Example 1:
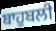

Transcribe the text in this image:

ਬਾਹੁਬਲੀ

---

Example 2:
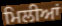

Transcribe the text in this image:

ਮਿਲੀਆਂ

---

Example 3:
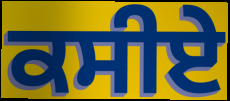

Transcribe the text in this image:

ਕਸੀਏ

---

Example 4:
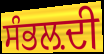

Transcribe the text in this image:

ਸੰਭਲ਼ਦੀ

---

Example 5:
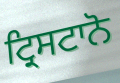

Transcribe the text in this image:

ਟ੍ਰਿਸਟਾਨੋ